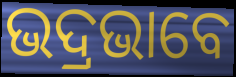
ଭଦ୍ରଭାବେ